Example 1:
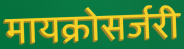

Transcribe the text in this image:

मायक्रोसर्जरी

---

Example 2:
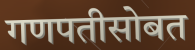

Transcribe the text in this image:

गणपतीसोबत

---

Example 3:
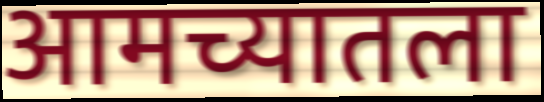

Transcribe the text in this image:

आमच्यातला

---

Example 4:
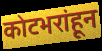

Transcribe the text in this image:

कोटभरांहून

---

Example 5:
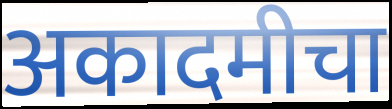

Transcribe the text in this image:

अकादमीचा